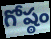
గోష్ఠం